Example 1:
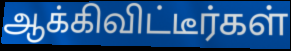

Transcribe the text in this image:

ஆக்கிவிட்டீர்கள்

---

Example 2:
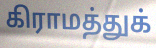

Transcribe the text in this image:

கிராமத்துக்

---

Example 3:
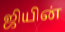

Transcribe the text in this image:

ஜியின்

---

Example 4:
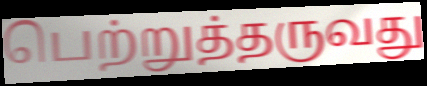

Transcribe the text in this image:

பெற்றுத்தருவது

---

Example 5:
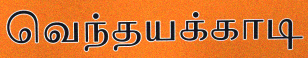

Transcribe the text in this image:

வெந்தயக்காடி